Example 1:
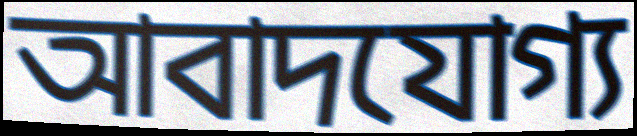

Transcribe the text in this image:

আবাদযোগ্য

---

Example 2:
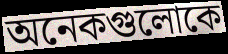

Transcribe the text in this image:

অনেকগুলোকে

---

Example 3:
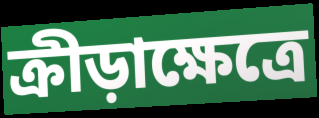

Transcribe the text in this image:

ক্রীড়াক্ষেত্রে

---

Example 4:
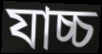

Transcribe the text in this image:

যাচ্চ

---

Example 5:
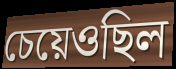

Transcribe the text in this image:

চেয়েওছিল